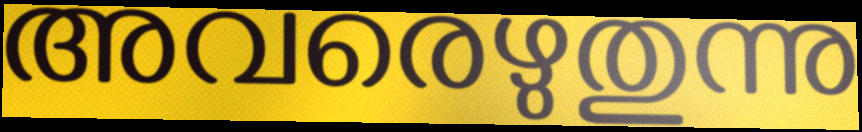
അവരെഴുതുന്നു